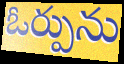
ఓర్పును